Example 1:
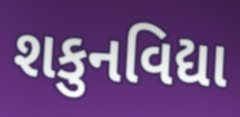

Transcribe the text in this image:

શકુનવિદ્યા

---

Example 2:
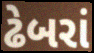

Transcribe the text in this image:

ઢેબરાં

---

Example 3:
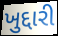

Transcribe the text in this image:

ખુદ્દારી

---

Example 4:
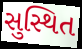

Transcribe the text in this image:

સુસ્થિત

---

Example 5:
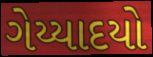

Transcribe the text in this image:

ગેય્યાદયો